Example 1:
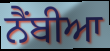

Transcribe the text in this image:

ਨੈਂਬੀਆ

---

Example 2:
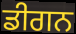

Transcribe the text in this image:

ਡੀਗਨ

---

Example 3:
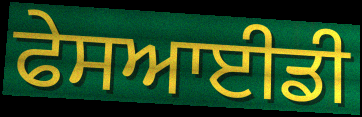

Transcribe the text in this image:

ਫੇਸਆਈਡੀ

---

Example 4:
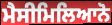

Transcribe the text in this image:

ਮੈਸੀਮਿਲਿਆਨੋ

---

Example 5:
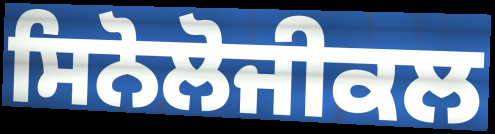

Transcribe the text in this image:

ਸਿਨੋਲੋਜੀਕਲ